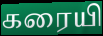
கரையி